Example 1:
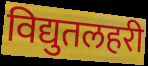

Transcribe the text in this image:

विद्युतलहरी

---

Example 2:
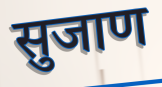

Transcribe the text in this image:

सुजाण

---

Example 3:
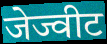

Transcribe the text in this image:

जेज्वीट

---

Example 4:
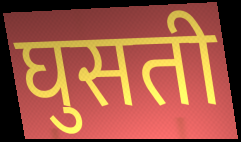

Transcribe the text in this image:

घुसती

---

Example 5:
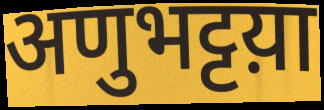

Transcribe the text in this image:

अणुभट्टय़ा